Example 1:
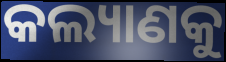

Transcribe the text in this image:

କଲ୍ୟାଣକୁ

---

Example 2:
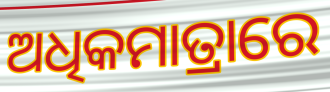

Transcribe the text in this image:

ଅଧିକମାତ୍ରାରେ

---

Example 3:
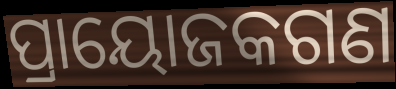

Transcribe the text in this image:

ପ୍ରାୟୋଜକଗଣ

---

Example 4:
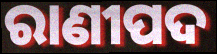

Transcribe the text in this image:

ରାଣୀପଦ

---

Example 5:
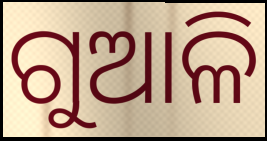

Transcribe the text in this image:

ଗୁଆଳି